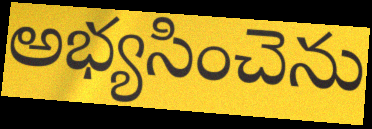
అభ్యసించెను